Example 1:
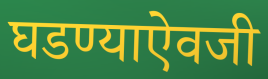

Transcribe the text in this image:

घडण्याऐवजी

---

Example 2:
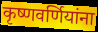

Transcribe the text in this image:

कृष्णवर्णियांना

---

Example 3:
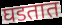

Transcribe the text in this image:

घडतात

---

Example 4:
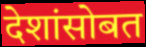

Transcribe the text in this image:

देशांसोबत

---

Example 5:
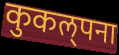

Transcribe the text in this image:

कुकल्पना